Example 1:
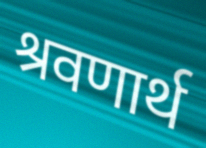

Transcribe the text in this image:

श्रवणार्थ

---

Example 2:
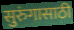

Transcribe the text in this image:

सुरुंगासाठी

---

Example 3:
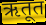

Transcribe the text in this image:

ऋतूत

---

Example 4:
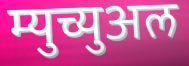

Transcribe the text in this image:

म्युच्युअल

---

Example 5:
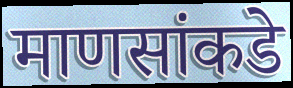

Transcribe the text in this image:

माणसांकडे